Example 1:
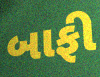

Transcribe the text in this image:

બાફી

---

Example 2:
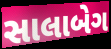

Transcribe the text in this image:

સાલાબેગ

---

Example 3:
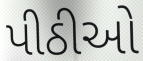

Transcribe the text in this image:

પીઠીઓ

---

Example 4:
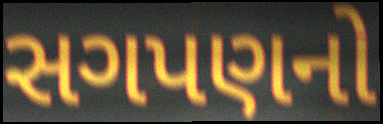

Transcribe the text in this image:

સગપણનો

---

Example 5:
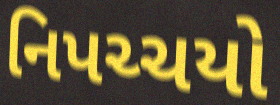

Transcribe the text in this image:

નિપચ્ચયો